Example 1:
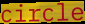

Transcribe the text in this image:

circle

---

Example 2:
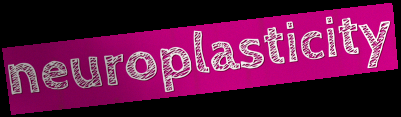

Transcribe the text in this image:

neuroplasticity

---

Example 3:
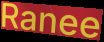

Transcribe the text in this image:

Ranee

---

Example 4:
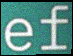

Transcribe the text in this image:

ef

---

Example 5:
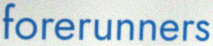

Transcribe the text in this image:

forerunners